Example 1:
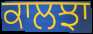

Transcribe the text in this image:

ਕਾਲਝਾ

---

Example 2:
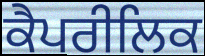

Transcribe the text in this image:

ਕੈਪਰੀਲਿਕ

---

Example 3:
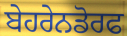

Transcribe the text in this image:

ਬੇਹਰੇਨਡੋਰਫ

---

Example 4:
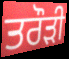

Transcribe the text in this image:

ਤਰੌੜੀ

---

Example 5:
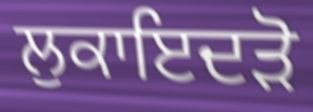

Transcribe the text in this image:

ਲੁਕਾਇਦੜੋ